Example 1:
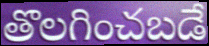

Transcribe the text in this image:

తొలగించబడే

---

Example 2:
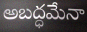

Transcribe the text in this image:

అబద్ధమేనా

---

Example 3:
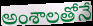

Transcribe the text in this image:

అంశాలతోనే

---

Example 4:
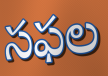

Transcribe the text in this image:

సఫల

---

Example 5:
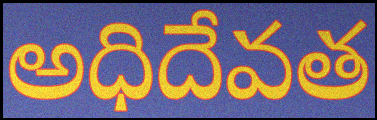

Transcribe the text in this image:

అధిదేవత